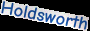
Holdsworth